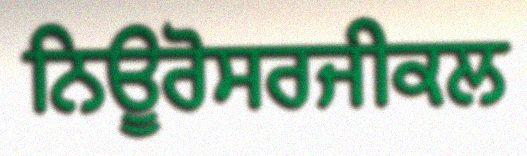
ਨਿਊਰੋਸਰਜੀਕਲ